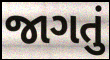
જાગતું